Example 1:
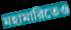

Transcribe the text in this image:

মহামারিতেও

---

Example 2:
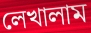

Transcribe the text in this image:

লেখালাম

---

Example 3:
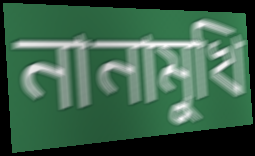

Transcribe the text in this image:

নানামুখি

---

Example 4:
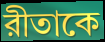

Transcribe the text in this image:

রীতাকে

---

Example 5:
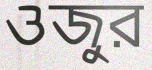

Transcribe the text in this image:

ওজুর